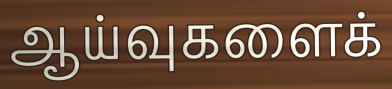
ஆய்வுகளைக்